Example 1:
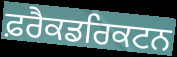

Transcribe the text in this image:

ਫ਼ਰੈਕਡਰਿਕਟਨ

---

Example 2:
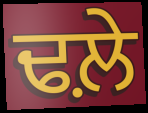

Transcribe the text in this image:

ਢਲ਼ੇ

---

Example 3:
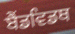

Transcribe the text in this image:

ਬੈਂਡਵਿਡਥ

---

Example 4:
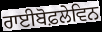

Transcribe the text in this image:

ਰਾਈਬੋਫ਼ਲੇਵਿਨ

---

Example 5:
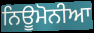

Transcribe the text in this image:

ਨਿਊਮੋਨੀਆ